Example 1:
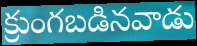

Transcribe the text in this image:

క్రుంగబడినవాడు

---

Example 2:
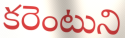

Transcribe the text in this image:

కరెంటుని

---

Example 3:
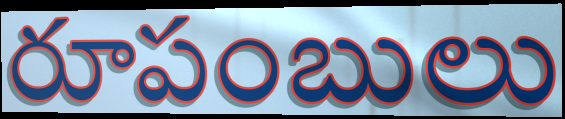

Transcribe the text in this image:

రూపంబులు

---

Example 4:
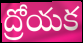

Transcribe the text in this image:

ద్రోయక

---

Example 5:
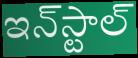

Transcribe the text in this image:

ఇన్‌స్టాల్